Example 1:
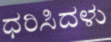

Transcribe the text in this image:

ಧರಿಸಿದಳು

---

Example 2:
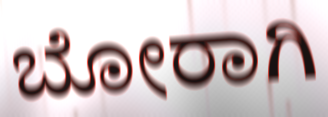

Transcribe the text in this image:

ಬೋರಾಗಿ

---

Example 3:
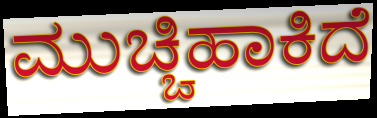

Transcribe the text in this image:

ಮುಚ್ಚಿಹಾಕಿದೆ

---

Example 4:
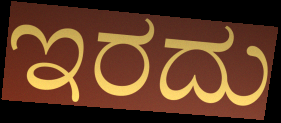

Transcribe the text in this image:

ಇರದು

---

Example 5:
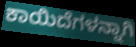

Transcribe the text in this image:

ಕಾಯಿದೆಗಳನ್ನಾಗಿ